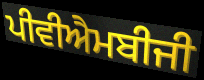
ਪੀਵੀਐਮਬੀਜੀ